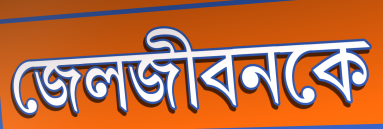
জেলজীবনকে